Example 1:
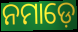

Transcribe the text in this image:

ନମାଡ଼େ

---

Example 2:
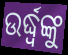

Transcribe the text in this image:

ଉର୍ଦ୍ଧ୍ୱଙ୍କୁ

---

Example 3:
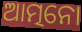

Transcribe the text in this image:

ଆତ୍ମନୋ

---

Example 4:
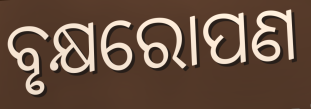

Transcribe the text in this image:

ବୃକ୍ଷରୋପଣ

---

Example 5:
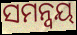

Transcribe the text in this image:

ସମନ୍ନ୍ୱୟ